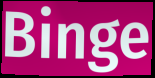
Binge